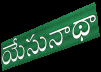
యేసునాథా